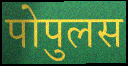
पोपुलस